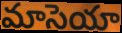
మాసెయా